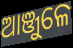
ଆଞ୍ଜୁଳେ